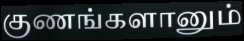
குணங்களானும்